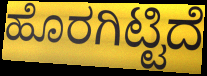
ಹೊರಗಿಟ್ಟಿದೆ